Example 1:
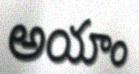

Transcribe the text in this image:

అయాం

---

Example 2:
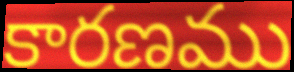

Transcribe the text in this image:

కారణము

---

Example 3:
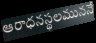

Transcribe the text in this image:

ఆరాధనస్థలముననే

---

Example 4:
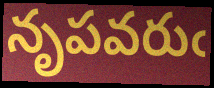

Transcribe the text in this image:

నృపవరుఁ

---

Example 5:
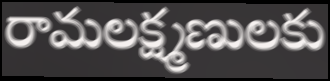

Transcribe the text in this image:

రామలక్ష్మణులకు